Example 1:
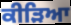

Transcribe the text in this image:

ਕੀੜਿਆ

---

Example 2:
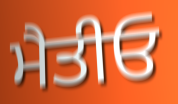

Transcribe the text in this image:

ਮੈਤੀਓ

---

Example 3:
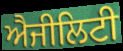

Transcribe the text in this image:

ਐਜੀਲਿਟੀ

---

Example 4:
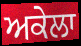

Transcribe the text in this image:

ਅਕੇਲਾ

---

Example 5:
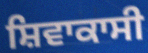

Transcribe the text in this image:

ਸ਼ਿਵਾਕਾਸੀ